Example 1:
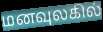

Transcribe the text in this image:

மனவுலகில்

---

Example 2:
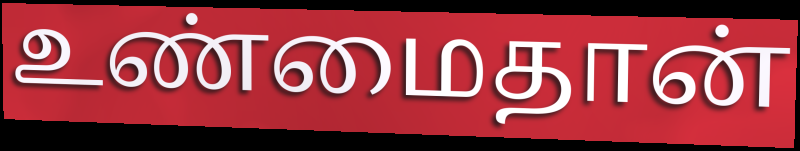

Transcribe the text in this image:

உண்மைதான்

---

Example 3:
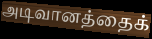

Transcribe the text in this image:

அடிவானத்தைக்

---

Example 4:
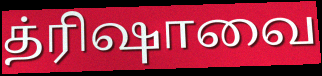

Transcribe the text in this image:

த்ரிஷாவை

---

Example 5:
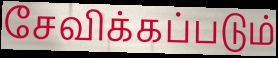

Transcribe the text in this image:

சேவிக்கப்படும்